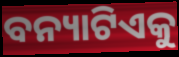
ବନ୍ୟାଟିଏକୁ